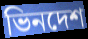
ভিনদেশ